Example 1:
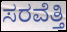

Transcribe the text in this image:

ಸರವೆತ್ತಿ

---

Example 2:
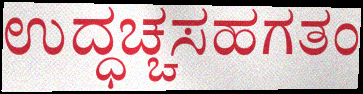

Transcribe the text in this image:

ಉದ್ಧಚ್ಚಸಹಗತಂ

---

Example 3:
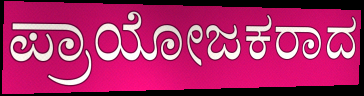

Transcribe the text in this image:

ಪ್ರಾಯೋಜಕರಾದ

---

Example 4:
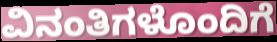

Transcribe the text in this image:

ವಿನಂತಿಗಳೊಂದಿಗೆ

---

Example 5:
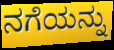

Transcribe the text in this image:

ನಗೆಯನ್ನು